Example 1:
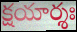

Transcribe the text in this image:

క్షయార్శః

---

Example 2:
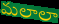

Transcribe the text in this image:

మలాలా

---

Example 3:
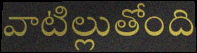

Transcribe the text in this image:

వాటిల్లుతోంది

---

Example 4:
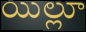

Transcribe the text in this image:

యిల్లూ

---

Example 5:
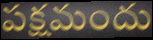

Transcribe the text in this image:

పక్షమందు